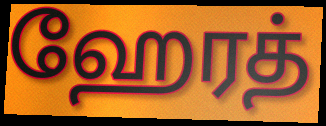
ஹேரத்